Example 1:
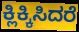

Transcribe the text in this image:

ಕ್ಲಿಕ್ಕಿಸಿದರೆ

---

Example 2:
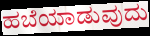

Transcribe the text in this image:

ಹಬೆಯಾಡುವುದು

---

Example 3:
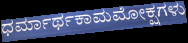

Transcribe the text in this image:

ಧರ್ಮಾರ್ಥಕಾಮಮೋಕ್ಷಗಳು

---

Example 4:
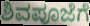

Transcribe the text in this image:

ಶಿವಪೂಜೆಗೆ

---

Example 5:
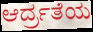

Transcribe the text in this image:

ಆರ್ದ್ರತೆಯ